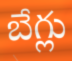
బేగ్లు